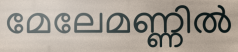
മേലേമണ്ണിൽ